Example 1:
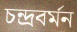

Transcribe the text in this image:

চন্দ্রবর্মন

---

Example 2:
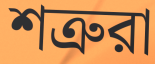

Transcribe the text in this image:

শত্রুরা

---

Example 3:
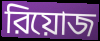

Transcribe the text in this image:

রিয়োজ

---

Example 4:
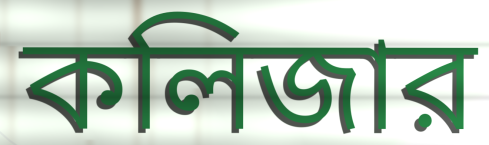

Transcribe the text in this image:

কলিজার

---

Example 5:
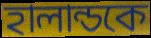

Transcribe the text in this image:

হালান্ডকে